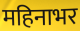
महिनाभर